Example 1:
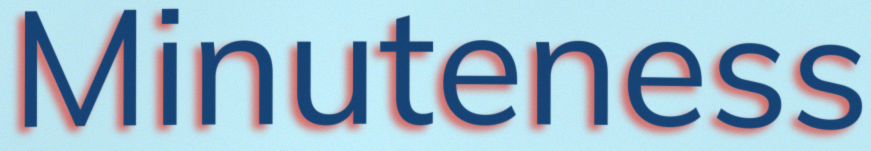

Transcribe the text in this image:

Minuteness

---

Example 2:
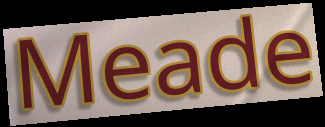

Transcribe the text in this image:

Meade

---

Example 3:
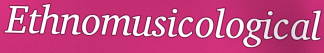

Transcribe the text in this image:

Ethnomusicological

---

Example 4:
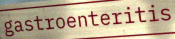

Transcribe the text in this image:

gastroenteritis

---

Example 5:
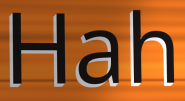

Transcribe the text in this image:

Hah